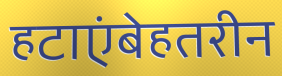
हटाएंबेहतरीन